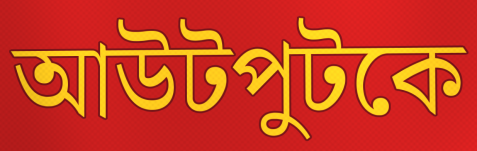
আউটপুটকে